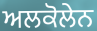
ਅਲਕੋਲੇਨ